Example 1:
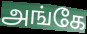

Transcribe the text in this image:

அங்கே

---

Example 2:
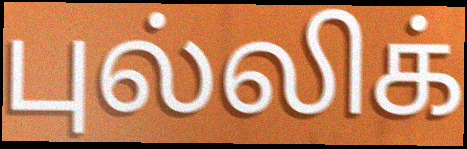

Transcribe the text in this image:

புல்லிக்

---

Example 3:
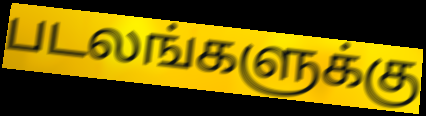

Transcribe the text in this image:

படலங்களுக்கு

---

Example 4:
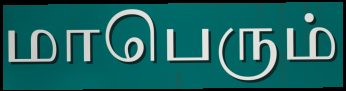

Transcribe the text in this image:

மாபெரும்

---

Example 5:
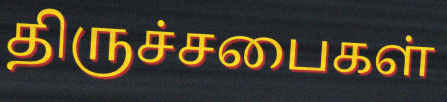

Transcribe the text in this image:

திருச்சபைகள்